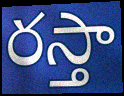
రస్తా